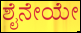
ಶೈನೇಯೇ